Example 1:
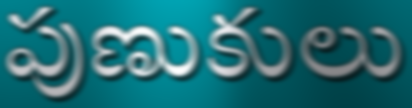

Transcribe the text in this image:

పుణుకులు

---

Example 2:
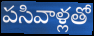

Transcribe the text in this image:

పసివాళ్లతో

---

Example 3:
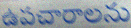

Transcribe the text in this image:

ఉపచారాలను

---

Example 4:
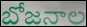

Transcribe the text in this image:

బోజనాల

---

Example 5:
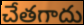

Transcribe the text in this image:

చేతగాదు